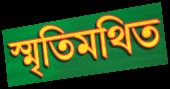
স্মৃতিমথিত